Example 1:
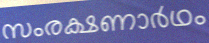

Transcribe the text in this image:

സംരക്ഷണാർഥം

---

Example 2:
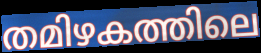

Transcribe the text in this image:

തമിഴകത്തിലെ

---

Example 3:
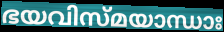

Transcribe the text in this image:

ഭയവിസ്മയാന്ധാഃ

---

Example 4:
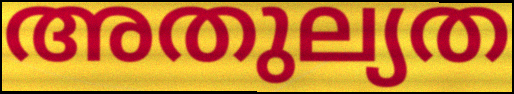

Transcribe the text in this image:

അതുല്യത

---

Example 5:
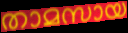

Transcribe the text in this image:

താമസായ